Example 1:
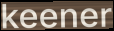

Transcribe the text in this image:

keener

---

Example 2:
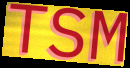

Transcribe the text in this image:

TSM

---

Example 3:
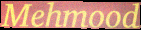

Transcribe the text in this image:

Mehmood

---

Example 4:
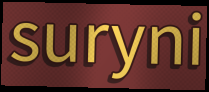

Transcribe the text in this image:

suryni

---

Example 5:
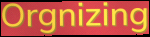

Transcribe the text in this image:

Orgnizing